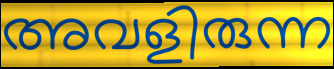
അവളിരുന്ന